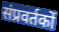
संप्रवर्तकों